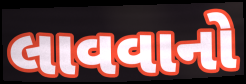
લાવવાનો